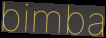
bimba